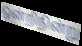
ஒன்றிநின்று